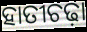
ହାତୀଚଢ଼ା